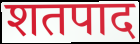
शतपाद